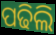
ପଢିଲି